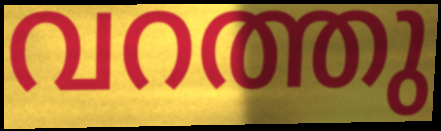
വറത്തു